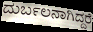
ದುರ್ಬಲನಾಗಿದ್ದರೆ